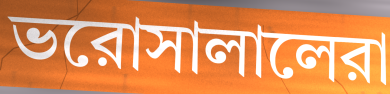
ভরোসালালেরা